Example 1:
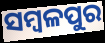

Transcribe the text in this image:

ସମ୍ବଳପୁର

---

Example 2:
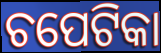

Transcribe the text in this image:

ଚପେଟିକା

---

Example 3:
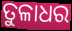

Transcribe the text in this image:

ତୁଳାଧର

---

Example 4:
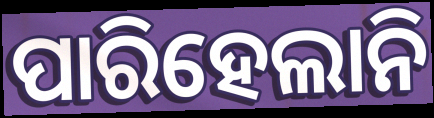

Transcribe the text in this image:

ପାରିହେଲାନି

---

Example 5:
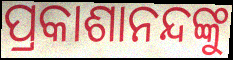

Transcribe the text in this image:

ପ୍ରକାଶାନନ୍ଦଙ୍କୁ